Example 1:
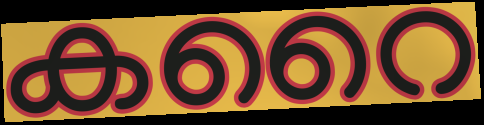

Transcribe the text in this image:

കറൈ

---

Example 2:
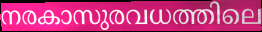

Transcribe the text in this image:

നരകാസുരവധത്തിലെ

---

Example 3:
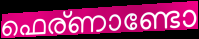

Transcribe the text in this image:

ഫെര്ണാണ്ടോ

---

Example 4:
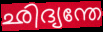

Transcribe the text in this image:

ഛിദ്യന്തേ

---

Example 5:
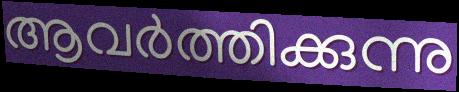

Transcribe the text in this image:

ആവർത്തിക്കുന്നു